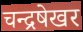
चन्द्रषेखर